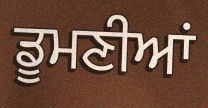
ਡੂਮਣੀਆਂ